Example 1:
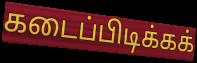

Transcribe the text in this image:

கடைப்பிடிக்கக்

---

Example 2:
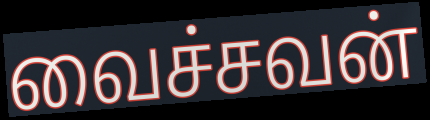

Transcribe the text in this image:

வைச்சவன்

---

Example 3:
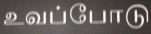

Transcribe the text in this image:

உவப்போடு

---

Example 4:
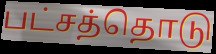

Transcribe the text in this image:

பட்சத்தொடு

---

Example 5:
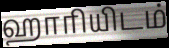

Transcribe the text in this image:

ஹாரியிடம்